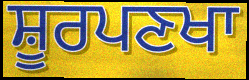
ਸ਼ੂਰਪਣਖਾ